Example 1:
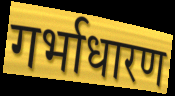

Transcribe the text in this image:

गर्भाधारण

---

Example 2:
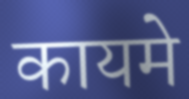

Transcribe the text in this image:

कायमे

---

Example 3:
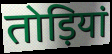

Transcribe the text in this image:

तोड़ियां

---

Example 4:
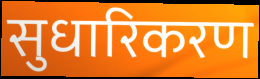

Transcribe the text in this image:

सुधारिकरण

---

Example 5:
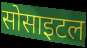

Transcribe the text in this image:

सोसाइटल